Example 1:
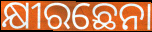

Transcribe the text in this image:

କ୍ଷୀରଛେନା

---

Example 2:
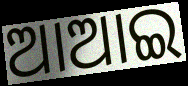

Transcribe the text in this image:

ଆଆଇ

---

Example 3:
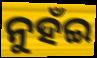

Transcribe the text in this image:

ନୁହଁଇ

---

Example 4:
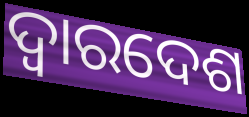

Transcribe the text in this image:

ଦ୍ୱାରଦେଶ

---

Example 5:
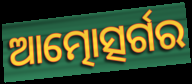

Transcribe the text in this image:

ଆତ୍ମୋତ୍ସର୍ଗର